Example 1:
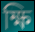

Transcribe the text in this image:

ক্ষি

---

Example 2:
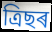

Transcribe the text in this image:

ত্ৰিছৰ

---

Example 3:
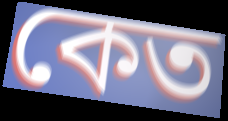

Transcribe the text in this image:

কেত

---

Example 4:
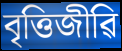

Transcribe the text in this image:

বৃত্তিজীৱি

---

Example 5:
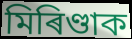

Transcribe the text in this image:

মিৰিণ্ডাক